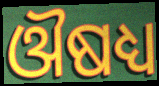
ଔଷଧ୍ୟ